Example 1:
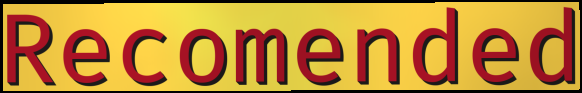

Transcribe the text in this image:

Recomended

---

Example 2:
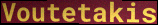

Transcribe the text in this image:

Voutetakis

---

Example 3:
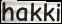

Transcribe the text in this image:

hakki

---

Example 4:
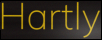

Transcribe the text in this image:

Hartly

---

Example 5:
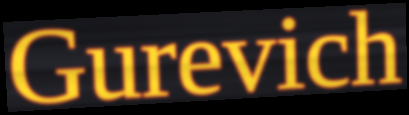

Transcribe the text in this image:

Gurevich